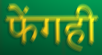
फेंगही